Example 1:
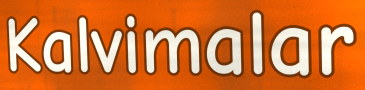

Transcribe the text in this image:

Kalvimalar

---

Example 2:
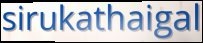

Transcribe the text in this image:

sirukathaigal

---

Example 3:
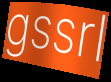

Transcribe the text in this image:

gssrl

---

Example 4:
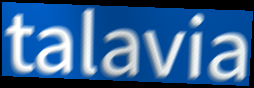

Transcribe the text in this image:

talavia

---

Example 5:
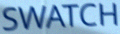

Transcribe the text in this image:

SWATCH